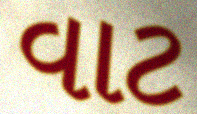
વાટ